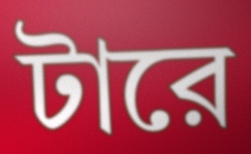
টারে